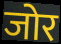
जोर